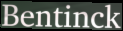
Bentinck